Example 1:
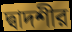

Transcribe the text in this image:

দ্বাদশীর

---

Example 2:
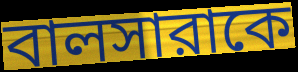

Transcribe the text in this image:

বালসারাকে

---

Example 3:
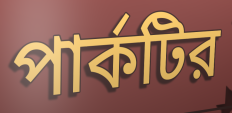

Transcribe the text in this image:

পার্কটির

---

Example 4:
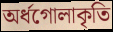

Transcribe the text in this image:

অর্ধগোলাকৃতি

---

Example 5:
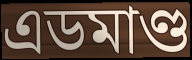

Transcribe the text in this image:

এডমাণ্ড